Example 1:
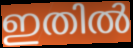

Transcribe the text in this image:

ഇതിൽ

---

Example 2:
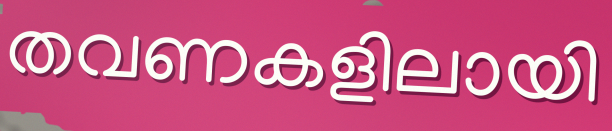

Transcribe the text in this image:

തവണകളിലായി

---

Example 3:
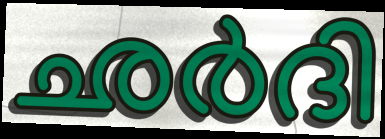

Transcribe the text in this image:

ഛർദി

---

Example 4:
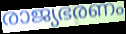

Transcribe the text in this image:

രാജ്യഭരണം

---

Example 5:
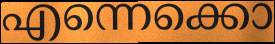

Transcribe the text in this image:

എന്നെക്കൊ